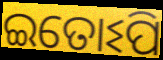
ଇତୋଽପି